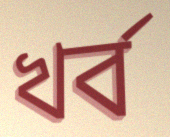
খৰ্ব